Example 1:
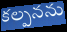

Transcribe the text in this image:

కల్పనను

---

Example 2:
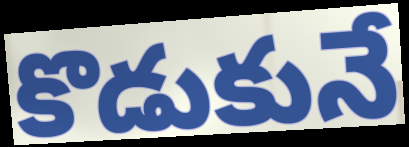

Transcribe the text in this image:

కొడుకునే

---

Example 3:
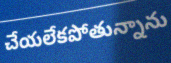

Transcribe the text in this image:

చేయలేకపోతున్నాను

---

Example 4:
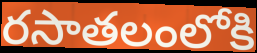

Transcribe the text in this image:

రసాతలంలోకి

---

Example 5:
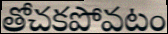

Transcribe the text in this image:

తోచకపోవటం